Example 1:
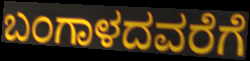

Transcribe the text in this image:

ಬಂಗಾಳದವರೆಗೆ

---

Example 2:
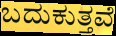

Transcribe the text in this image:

ಬದುಕುತ್ತವೆ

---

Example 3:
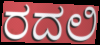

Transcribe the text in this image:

ರದಲಿ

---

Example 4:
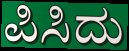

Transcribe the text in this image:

ಪಿಸಿದು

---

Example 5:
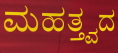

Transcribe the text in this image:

ಮಹತ್ತ್ವದ